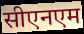
सीएनएम